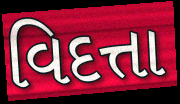
વિદત્તા